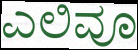
ಎಲಿವೂ